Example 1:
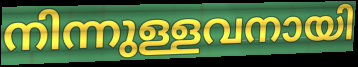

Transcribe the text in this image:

നിന്നുള്ളവനായി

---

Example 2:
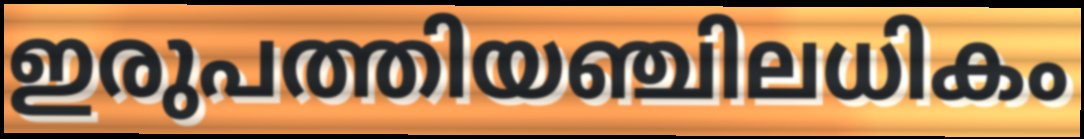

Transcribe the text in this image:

ഇരുപത്തിയഞ്ചിലധികം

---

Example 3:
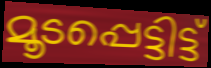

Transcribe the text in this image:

മൂടപ്പെട്ടിട്ട്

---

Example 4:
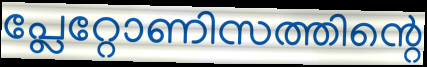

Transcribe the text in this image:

പ്ലേറ്റോണിസത്തിന്റെ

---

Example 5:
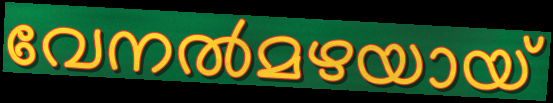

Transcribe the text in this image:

വേനൽമഴയായ്